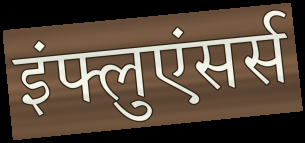
इंफ्लुएंसर्स